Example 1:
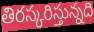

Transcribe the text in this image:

తిరస్కరిస్తున్నది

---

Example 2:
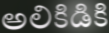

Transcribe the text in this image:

అలికిడికి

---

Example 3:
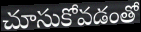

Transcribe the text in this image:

చూసుకోవడంతో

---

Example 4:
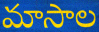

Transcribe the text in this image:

మాసాల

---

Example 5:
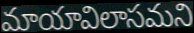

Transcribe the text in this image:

మాయావిలాసమని